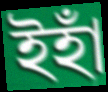
ইহাঁ